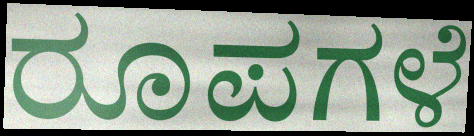
ರೂಪಗಳೆ